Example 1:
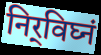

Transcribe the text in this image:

निर्विघ्नं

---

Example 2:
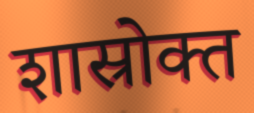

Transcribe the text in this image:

शास्रोक्त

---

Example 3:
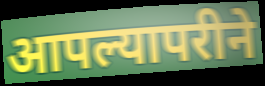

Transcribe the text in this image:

आपल्यापरीने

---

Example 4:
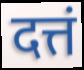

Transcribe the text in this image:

दत्तं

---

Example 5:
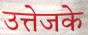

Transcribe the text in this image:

उत्तेजके